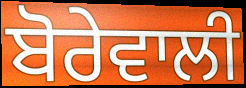
ਬੋਰੇਵਾਲੀ